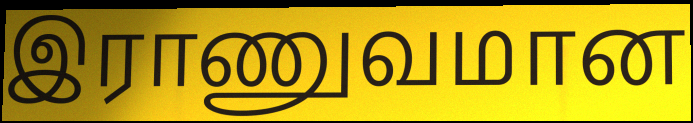
இராணுவமான